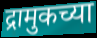
द्रामुकच्या